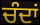
ਚੰਦਾਂ